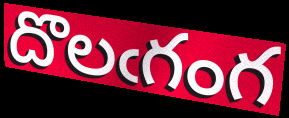
దొలఁగంగ